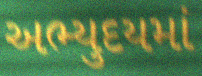
અભ્યુદયમાં